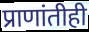
प्राणांतीही